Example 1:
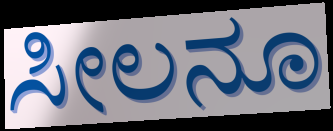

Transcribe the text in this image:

ಸೀಲನೂ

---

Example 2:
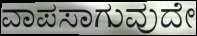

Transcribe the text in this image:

ವಾಪಸಾಗುವುದೇ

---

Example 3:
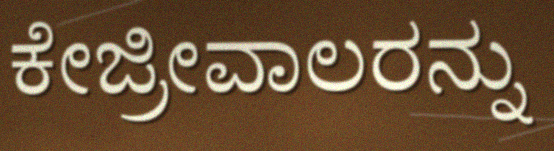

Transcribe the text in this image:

ಕೇಜ್ರೀವಾಲರನ್ನು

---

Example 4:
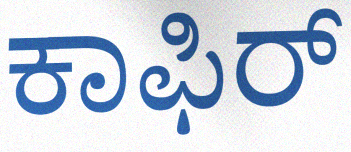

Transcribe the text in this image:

ಕಾಫಿರ್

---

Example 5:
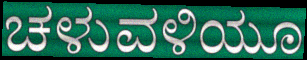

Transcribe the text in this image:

ಚಳುವಳಿಯೂ